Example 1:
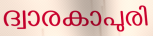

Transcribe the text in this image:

ദ്വാരകാപുരി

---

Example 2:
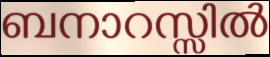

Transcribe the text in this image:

ബനാറസ്സിൽ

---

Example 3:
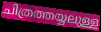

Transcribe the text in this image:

ചിത്രത്തയ്യലുള്ള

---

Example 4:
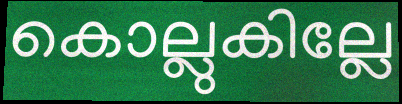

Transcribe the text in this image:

കൊല്ലുകില്ലേ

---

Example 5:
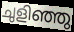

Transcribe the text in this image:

ചുളിഞ്ഞു